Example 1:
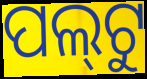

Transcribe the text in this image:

ପଲ୍‍ଟୁ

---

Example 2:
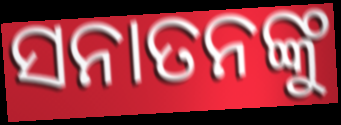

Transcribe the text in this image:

ସନାତନଙ୍କୁ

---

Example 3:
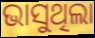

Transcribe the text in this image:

ଭାସୁଥିଲା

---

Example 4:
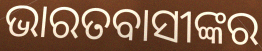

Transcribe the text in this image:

ଭାରତବାସୀଙ୍କର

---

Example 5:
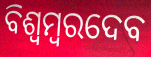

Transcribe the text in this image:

ବିଶ୍ୱମ୍ବରଦେବ